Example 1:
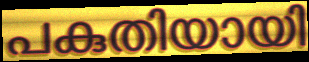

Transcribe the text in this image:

പകുതിയായി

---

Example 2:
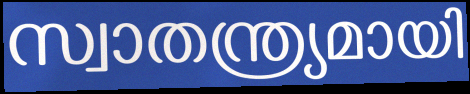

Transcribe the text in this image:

സ്വാതന്ത്ര്യമായി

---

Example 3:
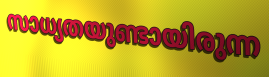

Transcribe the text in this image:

സാധ്യതയുണ്ടായിരുന്ന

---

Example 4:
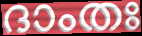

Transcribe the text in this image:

ദാംതഃ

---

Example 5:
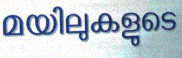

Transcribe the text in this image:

മയിലുകളുടെ